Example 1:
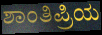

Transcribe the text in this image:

ಶಾಂತಿಪ್ರಿಯ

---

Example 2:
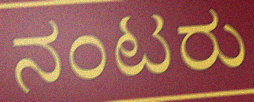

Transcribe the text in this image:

ನಂಟರು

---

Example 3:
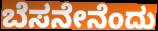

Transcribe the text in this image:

ಬೆಸನೇನೆಂದು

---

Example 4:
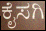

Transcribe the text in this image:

ಕೈಸಗಿ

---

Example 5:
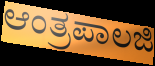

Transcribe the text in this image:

ಆಂತ್ರಪಾಲಜಿ